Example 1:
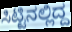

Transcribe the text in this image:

ಸಿಟ್ಟಿನಲ್ಲಿದ್ದ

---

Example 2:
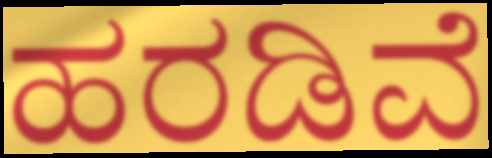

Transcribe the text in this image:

ಹರಡಿವೆ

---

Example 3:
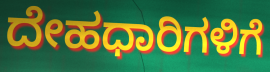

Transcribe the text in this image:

ದೇಹಧಾರಿಗಳಿಗೆ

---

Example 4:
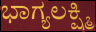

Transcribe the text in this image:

ಭಾಗ್ಯಲಕ್ಷ್ಮಿ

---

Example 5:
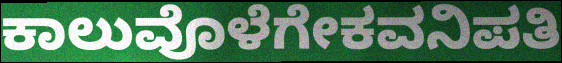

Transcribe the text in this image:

ಕಾಲುವೊಳೆಗೇಕವನಿಪತಿ